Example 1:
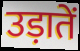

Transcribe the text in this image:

उड़ातें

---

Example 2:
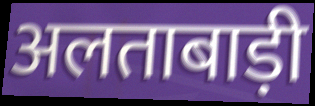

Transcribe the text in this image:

अलताबाड़ी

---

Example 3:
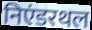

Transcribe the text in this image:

निएंडरथल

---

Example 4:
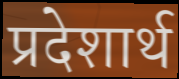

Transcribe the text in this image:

प्रदेशार्थ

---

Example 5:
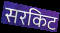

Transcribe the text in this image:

सरकिट